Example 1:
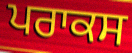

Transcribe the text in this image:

ਪਰਾਕਸ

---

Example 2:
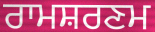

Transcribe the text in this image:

ਰਾਮਸ਼ਰਣਮ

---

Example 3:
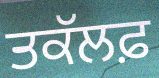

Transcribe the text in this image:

ਤਕੱਲਫ਼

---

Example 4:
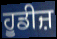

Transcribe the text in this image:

ਹੂਡੀਜ਼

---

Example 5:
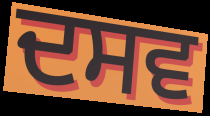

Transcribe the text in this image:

ਦਸਵ